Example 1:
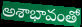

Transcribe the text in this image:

అశాభావంతో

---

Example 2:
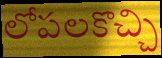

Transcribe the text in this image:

లోపలకొచ్చి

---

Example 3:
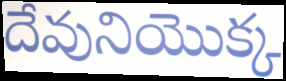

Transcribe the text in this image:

దేవునియొక్క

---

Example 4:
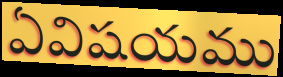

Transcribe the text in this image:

ఏవిషయము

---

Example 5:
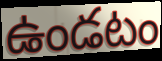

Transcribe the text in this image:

ఉండటం